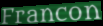
Francon